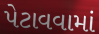
પેટાવવામાં